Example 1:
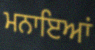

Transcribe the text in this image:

ਮਨਾਇਆਂ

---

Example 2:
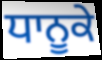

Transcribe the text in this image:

ਧਾਨੂਕੇ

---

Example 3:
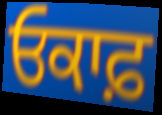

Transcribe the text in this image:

ਓਕਾਫ਼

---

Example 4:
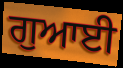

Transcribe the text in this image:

ਗੁਆਈ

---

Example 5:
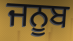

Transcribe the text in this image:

ਜਨੂਬ